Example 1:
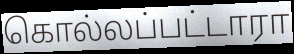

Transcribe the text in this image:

கொல்லப்பட்டாரா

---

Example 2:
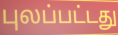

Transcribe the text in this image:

புலப்பட்டது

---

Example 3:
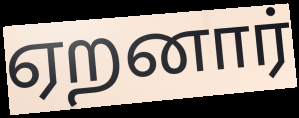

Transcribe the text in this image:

ஏறனார்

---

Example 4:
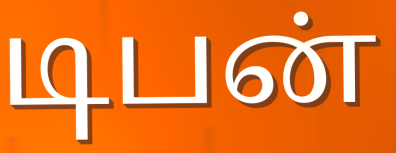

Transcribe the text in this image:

டிபன்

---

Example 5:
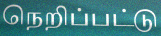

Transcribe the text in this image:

நெறிப்பட்டு